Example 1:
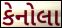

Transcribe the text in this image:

કેનોલા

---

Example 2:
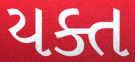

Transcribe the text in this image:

યક્ત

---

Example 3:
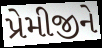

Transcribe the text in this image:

પ્રેમીજીને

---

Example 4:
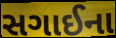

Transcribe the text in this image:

સગાઈના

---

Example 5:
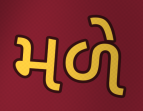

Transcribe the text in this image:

મળે